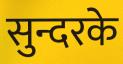
सुन्दरके